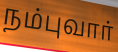
நம்புவார்